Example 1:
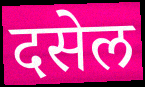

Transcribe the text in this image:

दसेल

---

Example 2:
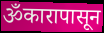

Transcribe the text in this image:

ॐकारापासून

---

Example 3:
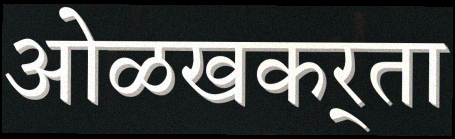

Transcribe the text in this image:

ओळखकर्ता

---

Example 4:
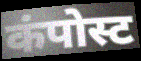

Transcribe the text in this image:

कंपोस्ट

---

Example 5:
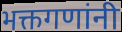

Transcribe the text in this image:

भक्तगणांनी